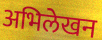
अभिलेखन